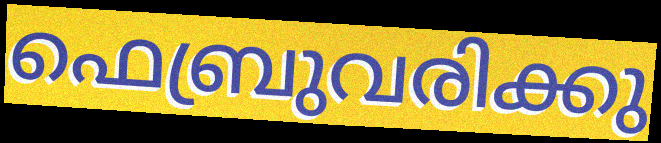
ഫെബ്രുവരിക്കു